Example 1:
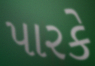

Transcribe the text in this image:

પારકે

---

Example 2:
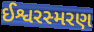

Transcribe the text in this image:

ઈશ્વરસ્મરણ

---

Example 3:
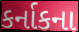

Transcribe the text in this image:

કર્નાકના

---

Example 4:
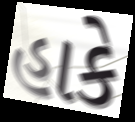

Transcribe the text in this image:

હાકે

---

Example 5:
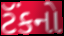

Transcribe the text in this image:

ટૅંકનો